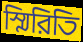
স্মিরিতি